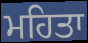
ਮਹਿਤਾ